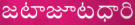
జటాజూటధారి